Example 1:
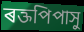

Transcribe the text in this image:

ৰক্তপিপাসু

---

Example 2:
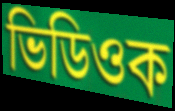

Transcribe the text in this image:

ভিডিওক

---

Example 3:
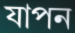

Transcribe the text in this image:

যাপন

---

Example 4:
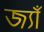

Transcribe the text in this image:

জ্যাঁ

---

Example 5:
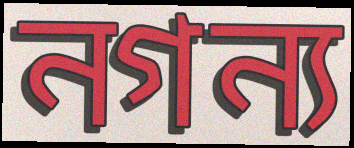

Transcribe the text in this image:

নগন্য